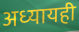
अध्यायही